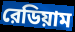
রেডিয়াম